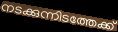
നടക്കുന്നിടത്തേക്ക്